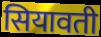
सियावती